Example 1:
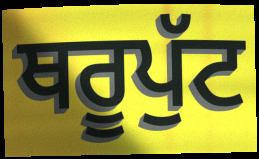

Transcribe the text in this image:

ਥਰੂਪੁੱਟ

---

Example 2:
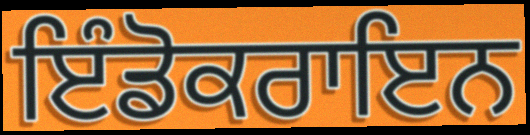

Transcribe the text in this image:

ਇੰਡੋਕਰਾਇਨ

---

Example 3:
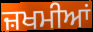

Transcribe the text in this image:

ਜ਼ਖਮੀਆਂ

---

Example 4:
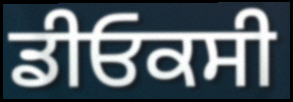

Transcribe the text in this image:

ਡੀਓਕਸੀ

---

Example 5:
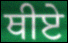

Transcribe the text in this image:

ਥੀਏ